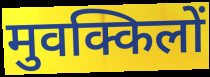
मुवक्किलों